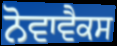
ਨੋਵਾਵੈਕਸ